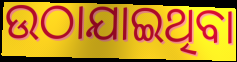
ଉଠାଯାଇଥିବା